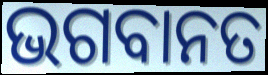
ଭଗବାନତ